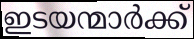
ഇടയന്മാർക്ക്